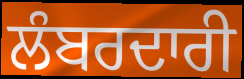
ਲੰਬਰਦਾਰੀ